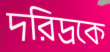
দরিদ্রকে